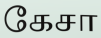
கேசா